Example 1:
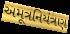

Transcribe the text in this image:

અમૂત્રનિયંત્રણ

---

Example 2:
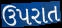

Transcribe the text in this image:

ઉપરાત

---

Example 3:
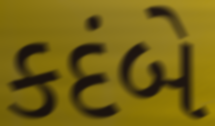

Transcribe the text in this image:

કદંબે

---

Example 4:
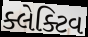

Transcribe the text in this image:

ક્લેક્ટિવ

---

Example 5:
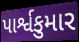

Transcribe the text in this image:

પાર્શ્વકુમાર